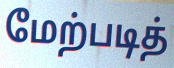
மேற்படித்